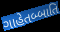
ગાહેતબ્બાતિ